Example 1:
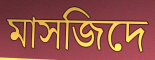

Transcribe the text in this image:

মাসজিদে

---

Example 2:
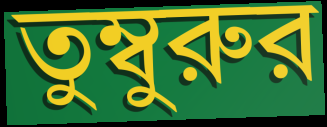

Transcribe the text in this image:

তুম্বুরুর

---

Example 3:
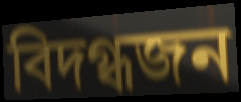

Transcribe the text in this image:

বিদগ্ধজন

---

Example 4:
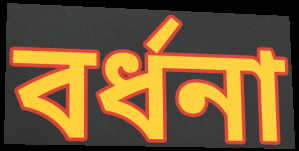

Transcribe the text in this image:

বর্ধনা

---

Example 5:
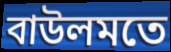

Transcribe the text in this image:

বাউলমতে